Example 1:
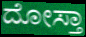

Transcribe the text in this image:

ದೋಸ್ತಾ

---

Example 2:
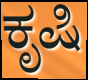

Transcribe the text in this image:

ಕೃಷಿ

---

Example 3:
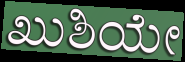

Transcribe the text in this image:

ಖುಶಿಯೇ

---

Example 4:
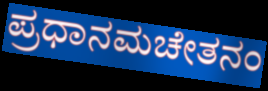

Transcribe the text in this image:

ಪ್ರಧಾನಮಚೇತನಂ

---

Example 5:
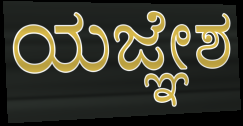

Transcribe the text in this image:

ಯಜ್ಞೇಶ